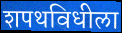
शपथविधीला